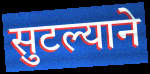
सुटल्याने